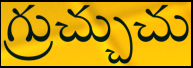
గ్రుచ్చుచు